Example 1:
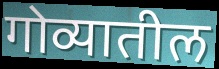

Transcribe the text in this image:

गोव्यातील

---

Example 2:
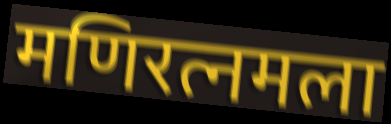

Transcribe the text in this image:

मणिरत्नमला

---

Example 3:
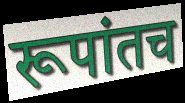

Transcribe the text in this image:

रूपांतच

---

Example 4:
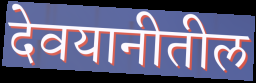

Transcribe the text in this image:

देवयानीतील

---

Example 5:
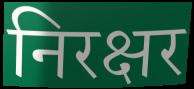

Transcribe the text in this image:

निरक्षर